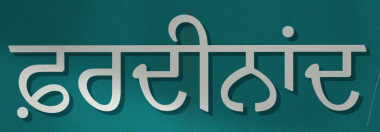
ਫ਼ਰਦੀਨਾਂਦ